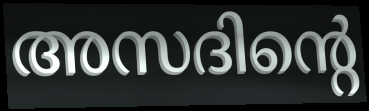
അസദിന്റെ